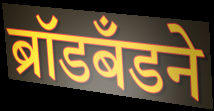
ब्रॉडबँडने